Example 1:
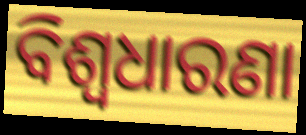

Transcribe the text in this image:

ବିଶ୍ୱଧାରଣା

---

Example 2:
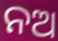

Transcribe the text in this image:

ନଅ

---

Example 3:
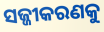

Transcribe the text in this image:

ସଜ୍ଜୀକରଣକୁ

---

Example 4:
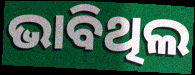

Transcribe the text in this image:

ଭାବିଥିଲ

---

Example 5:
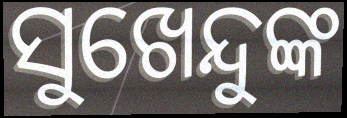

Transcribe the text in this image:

ସୁଖେନ୍ଦୁଙ୍କ